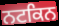
ਨਟਕਿਨ